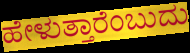
ಹೇಳುತ್ತಾರೆಂಬುದು